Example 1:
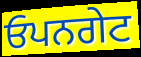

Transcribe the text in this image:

ਓਪਨਗੇਟ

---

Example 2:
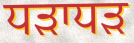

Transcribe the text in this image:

ਧੜਾਧੜ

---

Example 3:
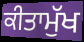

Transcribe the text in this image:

ਕੀਤਾਮੁੱਖ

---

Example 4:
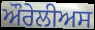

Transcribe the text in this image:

ਔਰੇਲੀਅਸ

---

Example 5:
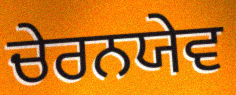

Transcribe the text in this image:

ਚੇਰਨਯੇਵ